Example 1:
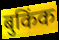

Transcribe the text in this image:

बुकिंक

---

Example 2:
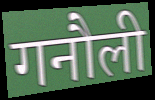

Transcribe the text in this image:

गनौली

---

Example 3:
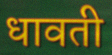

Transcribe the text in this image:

धावती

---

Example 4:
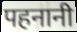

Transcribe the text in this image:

पहनानी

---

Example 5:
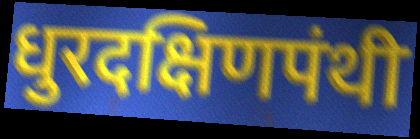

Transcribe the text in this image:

धुरदक्षिणपंथी